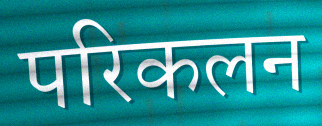
परिकलन